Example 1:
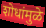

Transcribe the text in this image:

शोधांमुळे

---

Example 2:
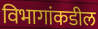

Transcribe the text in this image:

विभागांकडील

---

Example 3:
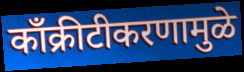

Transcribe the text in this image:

काँक्रीटीकरणामुळे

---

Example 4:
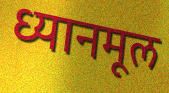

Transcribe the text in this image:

ध्यानमूल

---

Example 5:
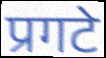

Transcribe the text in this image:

प्रगटे